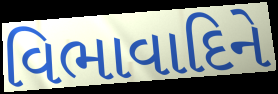
વિભાવાદિને